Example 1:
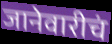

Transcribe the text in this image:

जानेवारीचं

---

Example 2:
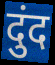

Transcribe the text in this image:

दुंद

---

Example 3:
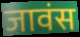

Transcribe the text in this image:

जावंस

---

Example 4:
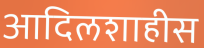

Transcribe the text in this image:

आदिलशाहीस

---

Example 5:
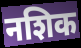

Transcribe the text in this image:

नशिक